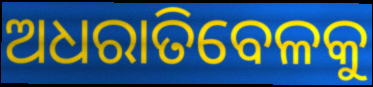
ଅଧରାତିବେଳକୁ